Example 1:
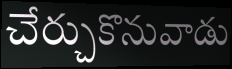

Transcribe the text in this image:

చేర్చుకొనువాడు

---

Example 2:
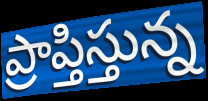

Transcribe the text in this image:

ప్రాప్తిస్తున్న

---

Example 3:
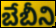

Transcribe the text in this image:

బేబీని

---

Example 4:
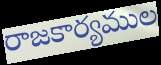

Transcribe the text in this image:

రాజకార్యముల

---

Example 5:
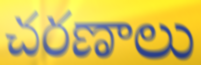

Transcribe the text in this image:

చరణాలు